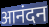
आनंदन